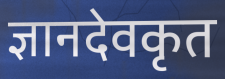
ज्ञानदेवकृत